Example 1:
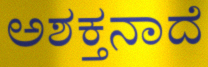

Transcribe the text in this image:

ಅಶಕ್ತನಾದೆ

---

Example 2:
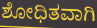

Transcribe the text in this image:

ಶೋಧಿತವಾಗಿ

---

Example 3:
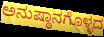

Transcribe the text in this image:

ಅನುಷ್ಠಾನಗೊಳ್ಳದ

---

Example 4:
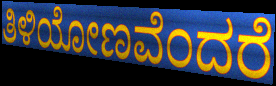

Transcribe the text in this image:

ತಿಳಿಯೋಣವೆಂದರೆ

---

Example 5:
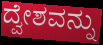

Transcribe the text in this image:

ದ್ವೇಶವನ್ನು